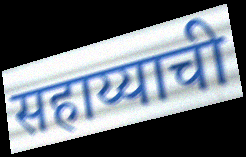
सहाय्याची